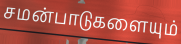
சமன்பாடுகளையும்